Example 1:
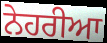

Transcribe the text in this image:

ਨੇਹਰੀਆ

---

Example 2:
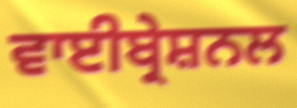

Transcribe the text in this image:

ਵਾਈਬ੍ਰੇਸ਼ਨਲ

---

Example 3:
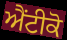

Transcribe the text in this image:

ਐਂਟੀਕੋ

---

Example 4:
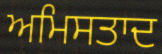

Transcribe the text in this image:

ਅਮਿਸਤਾਦ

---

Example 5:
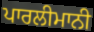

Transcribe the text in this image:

ਪਾਰਲੀਮਾਨੀ